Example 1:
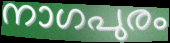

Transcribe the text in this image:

നാഗപുരം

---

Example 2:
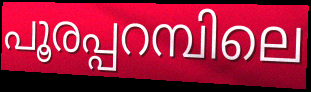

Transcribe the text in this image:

പൂരപ്പറമ്പിലെ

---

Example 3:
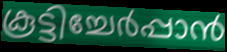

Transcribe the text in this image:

കൂട്ടിച്ചേർപ്പാൻ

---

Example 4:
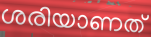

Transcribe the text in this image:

ശരിയാണത്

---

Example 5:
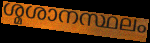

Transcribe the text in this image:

ശ്മശാനസ്ഥലം